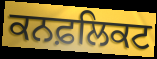
ਕਨਫ਼ਲਿਕਟ